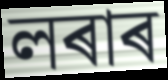
লৰাৰ